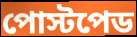
পোস্টপেড